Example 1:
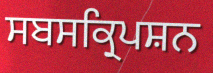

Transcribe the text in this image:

ਸਬਸਕ੍ਰਿਪਸ਼ਨ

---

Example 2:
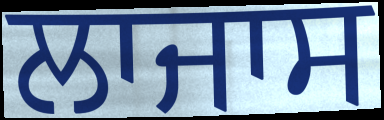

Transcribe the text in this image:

ਲਾਜਾਸ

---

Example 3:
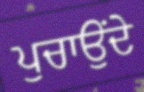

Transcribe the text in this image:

ਪੁਚਾਉਂਦੇ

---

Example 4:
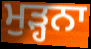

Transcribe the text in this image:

ਮੁੜ੍ਹਨਾ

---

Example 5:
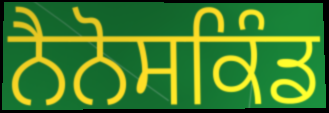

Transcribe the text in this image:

ਨੈਨੋਸਕਿੰਡ